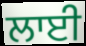
ਲਾਈ